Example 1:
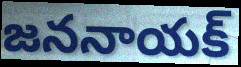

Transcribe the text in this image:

జననాయక్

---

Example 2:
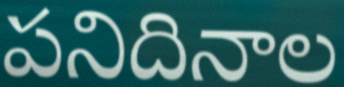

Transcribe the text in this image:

పనిదినాల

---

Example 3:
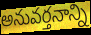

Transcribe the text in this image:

అనువర్తనాన్ని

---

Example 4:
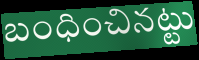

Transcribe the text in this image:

బంధించినట్టు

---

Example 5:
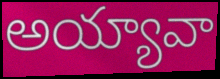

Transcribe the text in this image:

అయ్యావా